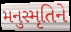
મનુસ્મૃતિને